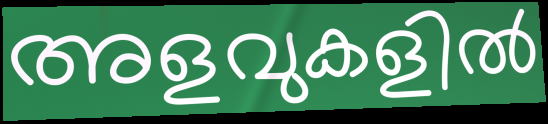
അളവുകളിൽ